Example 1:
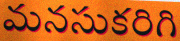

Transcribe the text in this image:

మనసుకరిగి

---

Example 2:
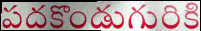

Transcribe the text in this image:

పదకొండుగురికి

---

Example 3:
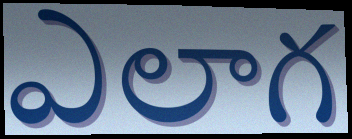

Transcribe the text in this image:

ఎలాగ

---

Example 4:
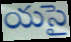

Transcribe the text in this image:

యసై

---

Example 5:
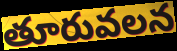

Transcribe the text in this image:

తూరువలన